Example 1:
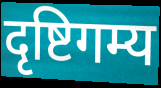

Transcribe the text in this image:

दृष्टिगम्य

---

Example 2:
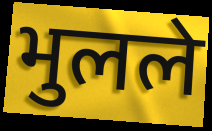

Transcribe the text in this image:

भुलले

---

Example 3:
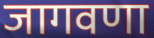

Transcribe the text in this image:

जागवणा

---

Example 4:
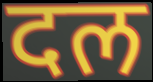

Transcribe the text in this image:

दल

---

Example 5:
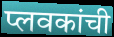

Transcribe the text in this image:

प्लवकांची